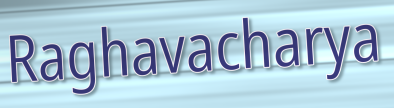
Raghavacharya